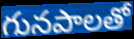
గునపాలతో